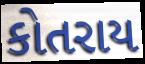
કોતરાય